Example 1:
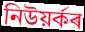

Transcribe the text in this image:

নিউয়ৰ্কৰ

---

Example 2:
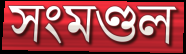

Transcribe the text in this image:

সংমণ্ডল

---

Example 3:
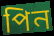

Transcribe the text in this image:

পিন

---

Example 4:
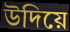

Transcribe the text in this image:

উদিয়ে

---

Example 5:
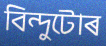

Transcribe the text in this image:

বিন্দুটোৰ